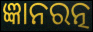
ଜ୍ଞାନରତ୍ନ